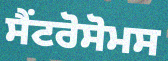
ਸੈਂਟਰੋਸੋਮਸ